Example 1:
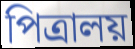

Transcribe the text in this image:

পিত্রালয়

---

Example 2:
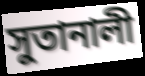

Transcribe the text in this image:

সুতানালী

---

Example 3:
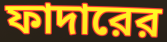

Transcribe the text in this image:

ফাদারের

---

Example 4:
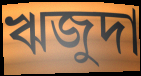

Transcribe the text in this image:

ঋজুদা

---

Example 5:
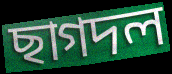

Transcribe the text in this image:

ছাগদল